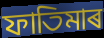
ফাতিমাৰ